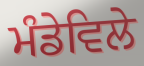
ਮੰਡੇਵਿਲੇ